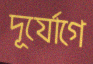
দূর্যোগে